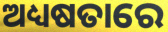
ଅଧ୍ୟଷତାରେ